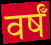
वर्षँ